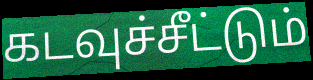
கடவுச்சீட்டும்